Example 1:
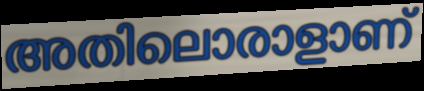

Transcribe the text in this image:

അതിലൊരാളാണ്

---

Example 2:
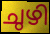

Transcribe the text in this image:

ചുഴി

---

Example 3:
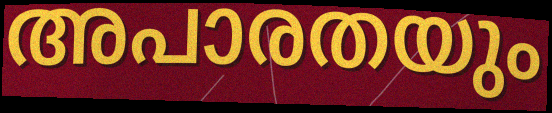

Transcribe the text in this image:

അപാരതയും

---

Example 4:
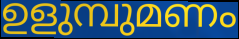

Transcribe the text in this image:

ഉളുമ്പുമണം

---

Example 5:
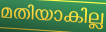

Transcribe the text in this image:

മതിയാകില്ല